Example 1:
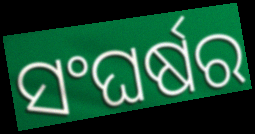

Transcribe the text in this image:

ସଂଘର୍ଷର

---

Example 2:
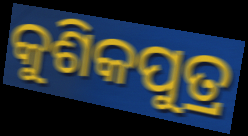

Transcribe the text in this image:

କୁଶିକପୁତ୍ର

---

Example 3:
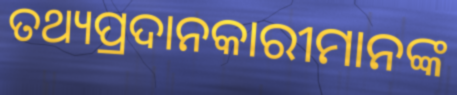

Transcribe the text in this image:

ତଥ୍ୟପ୍ରଦାନକାରୀମାନଙ୍କ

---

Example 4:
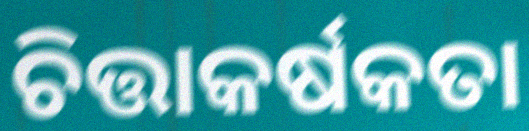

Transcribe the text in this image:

ଚିତ୍ତାକର୍ଷକତା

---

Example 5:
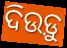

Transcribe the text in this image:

ଦିଉଡ଼ୁ